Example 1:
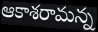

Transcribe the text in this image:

ఆకాశరామన్న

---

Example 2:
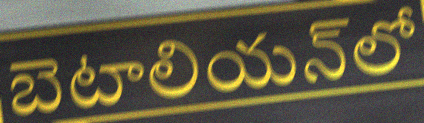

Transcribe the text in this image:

బెటాలియన్‌లో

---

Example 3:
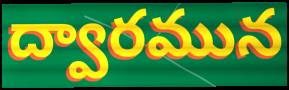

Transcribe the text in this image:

ద్వారమున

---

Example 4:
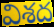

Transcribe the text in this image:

విశద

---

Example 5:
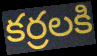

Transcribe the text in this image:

కర్రలకి